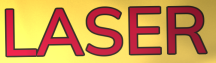
LASER